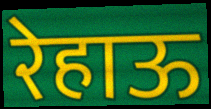
रेहाऊ